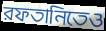
রফতানিতেও